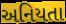
અનિયતા